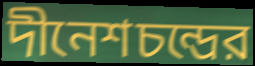
দীনেশচন্দ্রের